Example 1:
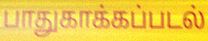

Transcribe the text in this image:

பாதுகாக்கப்படல்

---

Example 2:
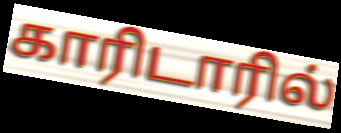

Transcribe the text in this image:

காரிடாரில்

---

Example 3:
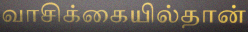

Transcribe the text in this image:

வாசிக்கையில்தான்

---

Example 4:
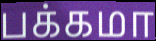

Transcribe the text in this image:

பக்கமா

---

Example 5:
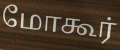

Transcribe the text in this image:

மோகூர்